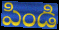
పిండి